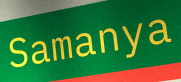
Samanya